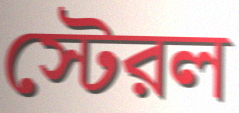
স্টেরল